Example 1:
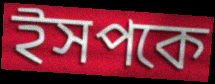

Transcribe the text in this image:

ইসপকে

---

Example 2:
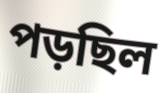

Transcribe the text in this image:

পড়ছিল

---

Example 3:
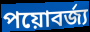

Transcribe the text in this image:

পয়োবর্জ্য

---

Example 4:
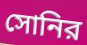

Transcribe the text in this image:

সোনির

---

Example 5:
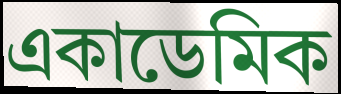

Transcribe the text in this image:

একাডেমিক